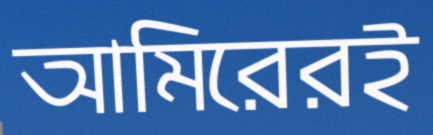
আমিরেরই